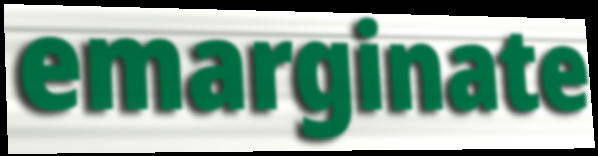
emarginate